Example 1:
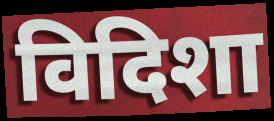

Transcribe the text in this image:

विदिशा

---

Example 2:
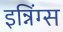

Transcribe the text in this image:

इन्निंग्स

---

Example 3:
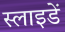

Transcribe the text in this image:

स्लाइडें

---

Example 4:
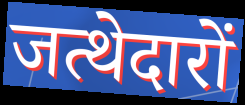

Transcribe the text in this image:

जत्थेदारों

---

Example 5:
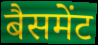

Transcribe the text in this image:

बैसमेंट